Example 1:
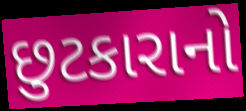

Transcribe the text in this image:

છુટકારાનો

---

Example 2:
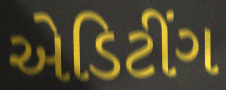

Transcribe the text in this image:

એડિટીંગ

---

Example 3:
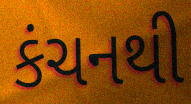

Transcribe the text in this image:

કંચનથી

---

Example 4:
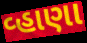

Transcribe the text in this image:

વ્હાણા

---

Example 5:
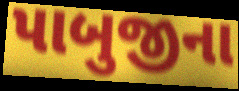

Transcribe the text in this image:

પાબુજીના